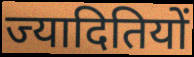
ज्यादितियों